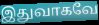
இதுவாகவே